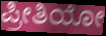
ಪ್ರೀತಿಯೋ